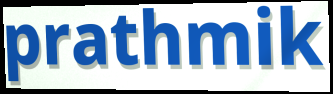
prathmik